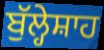
ਬੁੱਲ੍ਹੇਸ਼ਾਹ